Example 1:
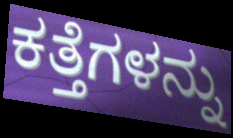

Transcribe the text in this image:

ಕತ್ತೆಗಳನ್ನು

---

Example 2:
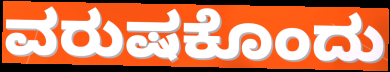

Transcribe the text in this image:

ವರುಷಕೊಂದು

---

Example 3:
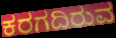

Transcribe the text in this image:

ಕರಗದಿರುವ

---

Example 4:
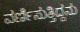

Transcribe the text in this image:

ವರ್ಣಿಸುತ್ತಿದ್ದನು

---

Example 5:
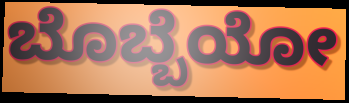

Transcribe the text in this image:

ಬೊಬ್ಬೆಯೋ